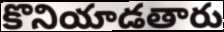
కొనియాడతారు